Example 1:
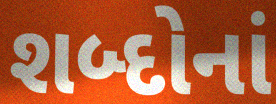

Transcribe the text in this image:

શબ્દોનાં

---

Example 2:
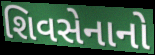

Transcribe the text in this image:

શિવસેનાનો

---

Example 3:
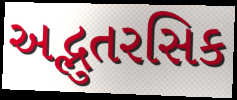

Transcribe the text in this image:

અદ્ભુતરસિક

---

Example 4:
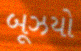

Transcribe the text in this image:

બૂઝયો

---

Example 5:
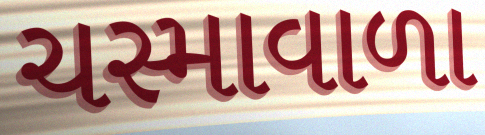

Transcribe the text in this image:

ચસ્માવાળા